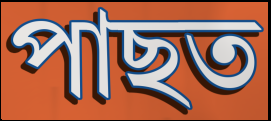
পাছত